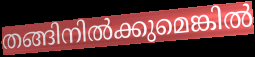
തങ്ങിനിൽക്കുമെങ്കിൽ